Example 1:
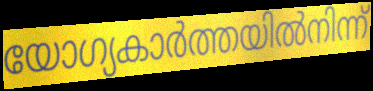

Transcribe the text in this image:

യോഗ്യകാർത്തയിൽനിന്ന്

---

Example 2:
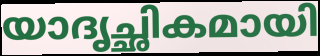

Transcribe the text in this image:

യാദൃച്ഛികമായി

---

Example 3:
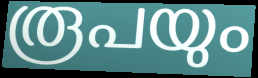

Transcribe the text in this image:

രൂപയും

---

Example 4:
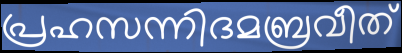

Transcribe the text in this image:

പ്രഹസന്നിദമബ്രവീത്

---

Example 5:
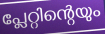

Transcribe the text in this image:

പ്ലേറ്റിന്റെയും